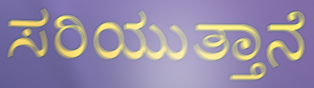
ಸರಿಯುತ್ತಾನೆ